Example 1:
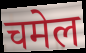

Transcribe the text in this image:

चमेल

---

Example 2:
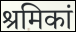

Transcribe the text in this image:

श्रमिकां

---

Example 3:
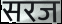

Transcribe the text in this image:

सरज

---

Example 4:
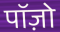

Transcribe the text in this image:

पॉज़ो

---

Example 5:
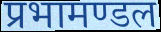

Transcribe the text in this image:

प्रभामण्डल